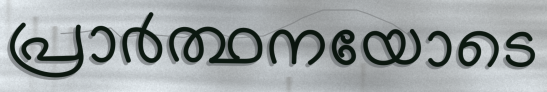
പ്രാർത്ഥനയോടെ